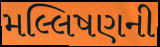
મલ્લિષણની